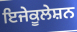
ਇਜੇਕੂਲੇਸ਼ਨ